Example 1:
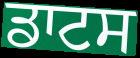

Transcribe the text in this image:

ਡਾਟਸ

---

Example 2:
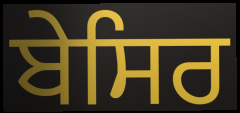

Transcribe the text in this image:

ਬੇਸਿਰ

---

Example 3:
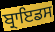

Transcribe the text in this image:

ਬ੍ਰਾਇਡਸ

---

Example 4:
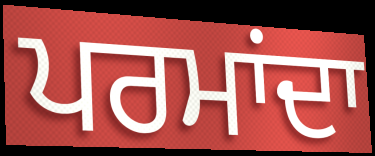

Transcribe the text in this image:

ਪਰਮਾਂਦਾ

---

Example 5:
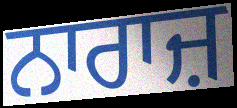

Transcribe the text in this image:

ਨਾਰਾਜ਼